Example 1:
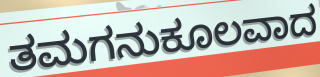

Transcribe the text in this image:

ತಮಗನುಕೂಲವಾದ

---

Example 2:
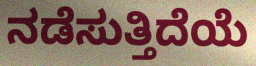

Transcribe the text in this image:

ನಡೆಸುತ್ತಿದೆಯೆ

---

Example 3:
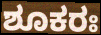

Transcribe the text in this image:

ಶೂಕರಃ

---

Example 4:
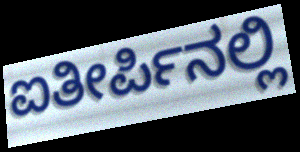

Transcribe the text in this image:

ಐತೀರ್ಪಿನಲ್ಲಿ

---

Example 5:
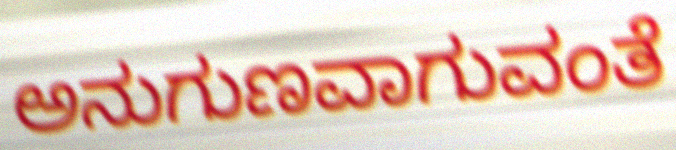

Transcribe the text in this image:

ಅನುಗುಣವಾಗುವಂತೆ